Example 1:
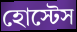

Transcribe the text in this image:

হোস্টেস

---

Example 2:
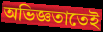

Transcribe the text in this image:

অভিজ্ঞতাতেই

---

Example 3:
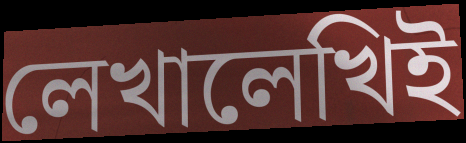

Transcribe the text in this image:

লেখালেখিই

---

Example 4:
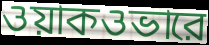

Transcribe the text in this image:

ওয়াকওভারে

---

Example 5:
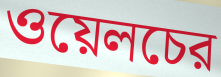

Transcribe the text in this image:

ওয়েলচের